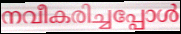
നവീകരിച്ചപ്പോൾ